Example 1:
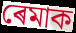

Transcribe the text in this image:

ৰেমাক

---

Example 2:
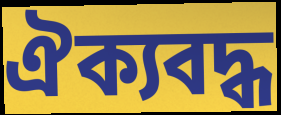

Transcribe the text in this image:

ঐক্যবদ্ধ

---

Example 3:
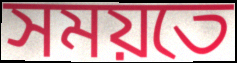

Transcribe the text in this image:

সময়তে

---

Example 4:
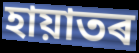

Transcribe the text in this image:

হায়াতৰ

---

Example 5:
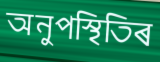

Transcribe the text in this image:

অনুপস্থিতিৰ